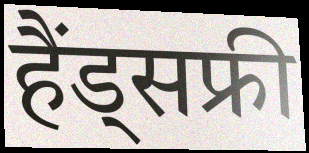
हैंड्सफ्री